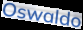
Oswaldo